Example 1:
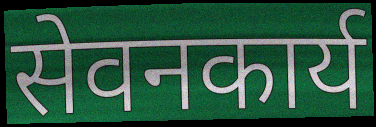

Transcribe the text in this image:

सेवनकार्य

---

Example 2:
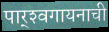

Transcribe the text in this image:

पार्श्वगायनाची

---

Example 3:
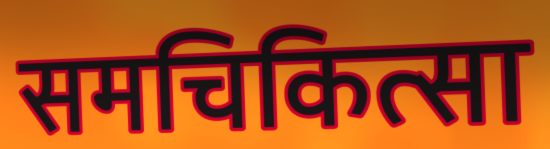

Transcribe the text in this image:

समचिकित्सा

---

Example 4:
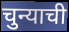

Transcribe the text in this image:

चुन्याची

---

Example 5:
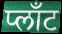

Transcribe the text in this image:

प्लाँट